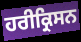
ਹਰੀਕ੍ਰਿਸਨ